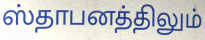
ஸ்தாபனத்திலும்